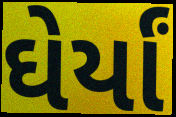
ઘેર્યાં